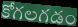
కోగలగడం